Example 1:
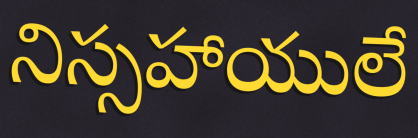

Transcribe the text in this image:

నిస్సహాయులే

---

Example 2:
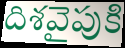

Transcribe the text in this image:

దిశవైపుకి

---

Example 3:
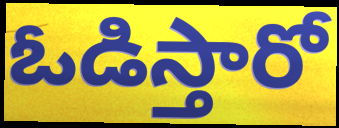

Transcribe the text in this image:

ఓడిస్తారో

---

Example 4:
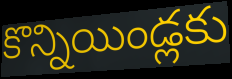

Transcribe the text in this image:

కొన్నియిండ్లకు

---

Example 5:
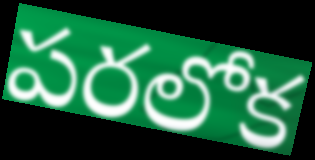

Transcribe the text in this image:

పరలోక